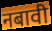
नबावी